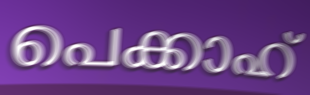
പെക്കാഹ്